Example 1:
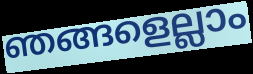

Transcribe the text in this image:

ഞങ്ങളെല്ലാം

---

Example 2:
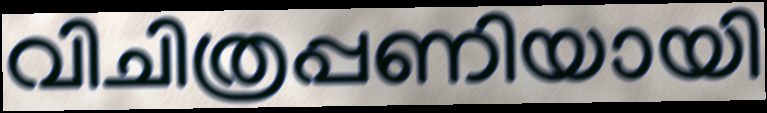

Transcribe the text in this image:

വിചിത്രപ്പണിയായി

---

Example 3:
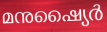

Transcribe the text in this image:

മനുഷ്യൈർ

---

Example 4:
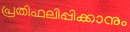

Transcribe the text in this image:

പ്രതിഫലിപ്പിക്കാനും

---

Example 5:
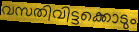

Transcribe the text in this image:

വസതിവിട്ടക്കൊടും